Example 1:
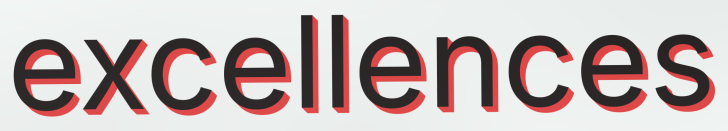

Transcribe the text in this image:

excellences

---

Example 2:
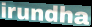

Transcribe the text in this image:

irundha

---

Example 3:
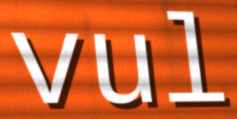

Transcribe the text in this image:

vul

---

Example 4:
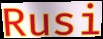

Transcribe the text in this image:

Rusi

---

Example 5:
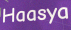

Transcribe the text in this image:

Haasya